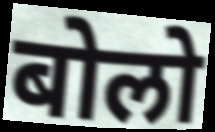
बोलो